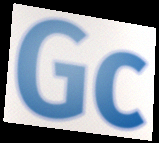
Gc